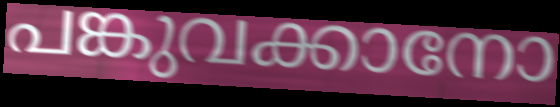
പങ്കുവക്കാനോ